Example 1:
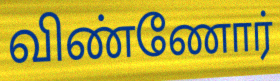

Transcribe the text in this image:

விண்ணோர்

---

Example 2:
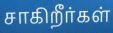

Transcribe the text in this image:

சாகிறீர்கள்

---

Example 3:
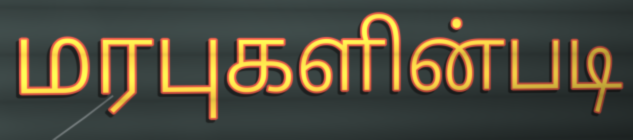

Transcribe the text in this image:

மரபுகளின்படி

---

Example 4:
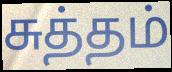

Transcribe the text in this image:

சுத்தம்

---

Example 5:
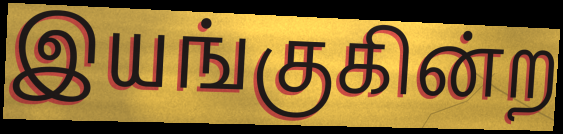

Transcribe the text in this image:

இயங்குகின்ற